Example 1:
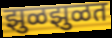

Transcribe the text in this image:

झुळझुळत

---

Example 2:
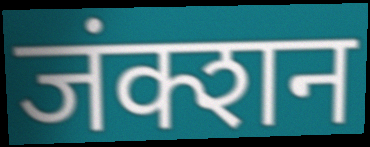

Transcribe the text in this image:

जंक्शन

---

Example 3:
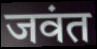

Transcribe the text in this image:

जवंत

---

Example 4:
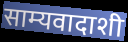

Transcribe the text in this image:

साम्यवादाशी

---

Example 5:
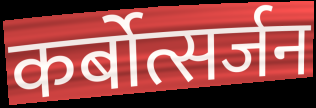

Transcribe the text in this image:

कर्बोत्सर्जन